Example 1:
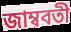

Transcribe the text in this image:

জাম্ববতী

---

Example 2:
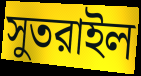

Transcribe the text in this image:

সুতরাইল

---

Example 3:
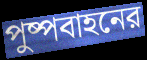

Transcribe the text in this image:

পুষ্পবাহনের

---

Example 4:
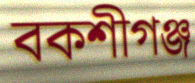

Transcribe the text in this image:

বকশীগঞ্জ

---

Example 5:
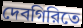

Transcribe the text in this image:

দেবগিরিতে